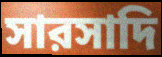
সারসাদি